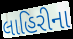
લાહિરીના